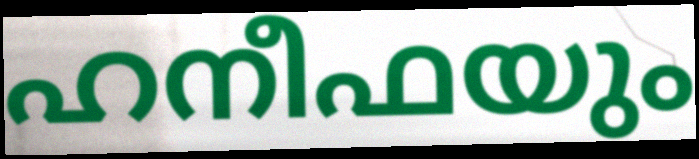
ഹനീഫയും